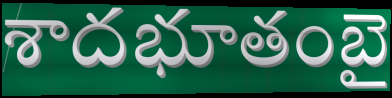
శాదభూతంబై